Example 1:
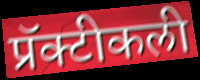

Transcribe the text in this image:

प्रॅक्टीकली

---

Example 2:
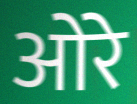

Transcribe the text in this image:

ओरे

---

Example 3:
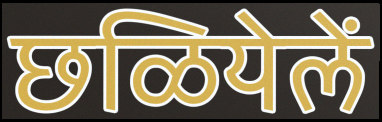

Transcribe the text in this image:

छळियेलें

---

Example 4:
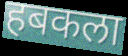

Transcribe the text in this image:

हबकला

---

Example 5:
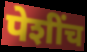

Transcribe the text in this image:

पेशींच